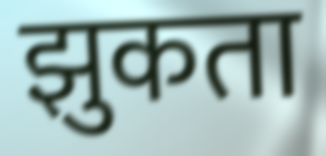
झुकता